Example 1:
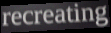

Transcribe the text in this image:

recreating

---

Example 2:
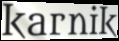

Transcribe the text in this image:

karnik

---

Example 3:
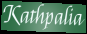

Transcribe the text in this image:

Kathpalia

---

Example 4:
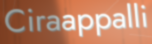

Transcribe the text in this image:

Ciraappalli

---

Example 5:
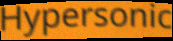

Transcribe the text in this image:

Hypersonic